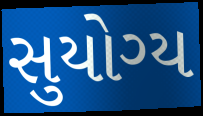
સુયોગ્ય